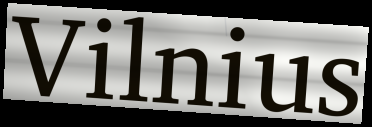
Vilnius